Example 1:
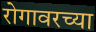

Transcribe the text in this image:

रोगावरच्या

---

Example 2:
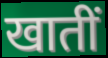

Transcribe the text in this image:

खातीं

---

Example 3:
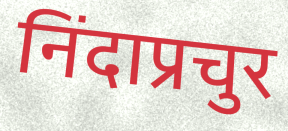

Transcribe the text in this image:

निंदाप्रचुर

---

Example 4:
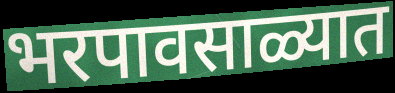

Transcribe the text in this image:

भरपावसाळ्यात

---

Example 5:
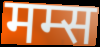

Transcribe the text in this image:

मम्स